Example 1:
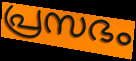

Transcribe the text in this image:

പ്രസഭം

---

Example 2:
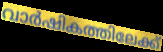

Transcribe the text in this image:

വാർഷികത്തിലേക്ക്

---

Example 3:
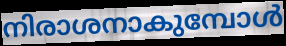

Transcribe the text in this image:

നിരാശനാകുമ്പോൾ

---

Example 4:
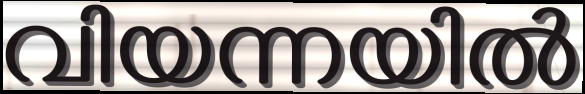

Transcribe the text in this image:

വിയന്നയിൽ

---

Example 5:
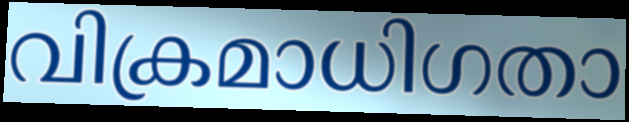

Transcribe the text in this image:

വിക്രമാധിഗതാ